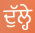
ਦੁੱਲ੍ਹੇ